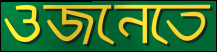
ওজনেতে